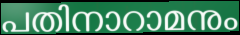
പതിനാറാമനും